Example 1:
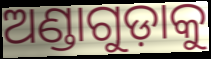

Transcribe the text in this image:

ଅଣ୍ଡାଗୁଡ଼ାକୁ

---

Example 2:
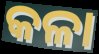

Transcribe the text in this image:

କଳା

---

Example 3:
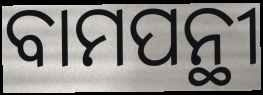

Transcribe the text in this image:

ବାମପନ୍ଥୀ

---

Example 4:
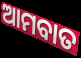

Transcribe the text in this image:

ଆମବାତ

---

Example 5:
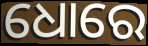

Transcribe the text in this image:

ଧୋରେ